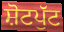
ਸ਼ੋਟਪੁੱਟ